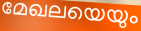
മേഖലയെയും